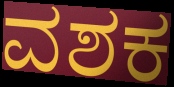
ವಶಕ